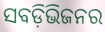
ସବଡ଼ିଭିଜନର